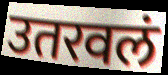
उतरवलं